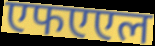
एफएएल